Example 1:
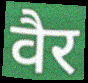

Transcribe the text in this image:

वैर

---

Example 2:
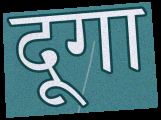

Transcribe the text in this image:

दूगा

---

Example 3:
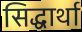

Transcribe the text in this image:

सिद्धार्था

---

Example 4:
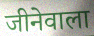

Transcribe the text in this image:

जीनेवाला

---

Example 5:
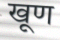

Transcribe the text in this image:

खूण